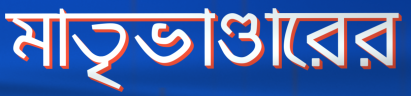
মাতৃভাণ্ডারের